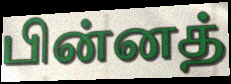
பின்னத்